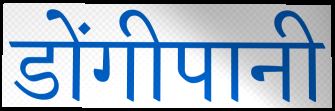
डोंगीपानी